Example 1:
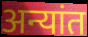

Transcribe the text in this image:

अन्यांत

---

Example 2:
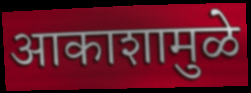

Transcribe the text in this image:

आकाशामुळे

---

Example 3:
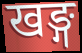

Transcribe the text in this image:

खङ्ग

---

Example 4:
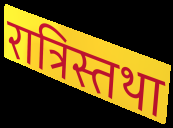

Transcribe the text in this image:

रात्रिस्तथा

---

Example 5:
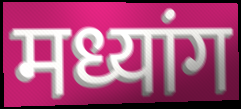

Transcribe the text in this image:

मध्यांग